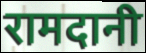
रामदानी